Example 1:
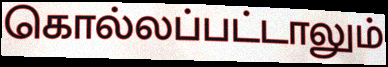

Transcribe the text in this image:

கொல்லப்பட்டாலும்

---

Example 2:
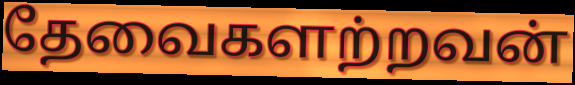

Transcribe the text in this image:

தேவைகளற்றவன்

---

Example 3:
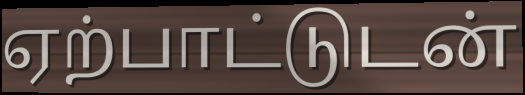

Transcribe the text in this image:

ஏற்பாட்டுடன்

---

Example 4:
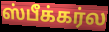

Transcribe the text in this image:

ஸ்பீக்கர்ல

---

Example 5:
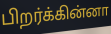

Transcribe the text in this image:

பிறர்க்கின்னா